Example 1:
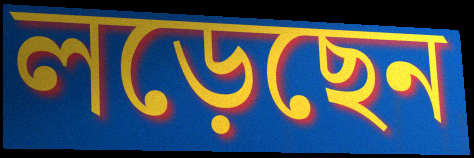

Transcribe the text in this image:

লড়েছেন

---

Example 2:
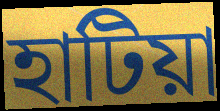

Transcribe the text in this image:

হাটিয়া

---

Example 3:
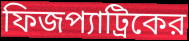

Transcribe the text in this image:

ফিজপ্যাট্রিকের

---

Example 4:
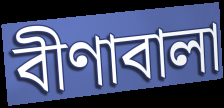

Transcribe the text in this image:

বীণাবালা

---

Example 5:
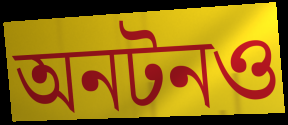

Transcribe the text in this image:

অনটনও